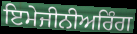
ਇਮੇਜੀਨੀਅਰਿੰਗ